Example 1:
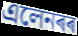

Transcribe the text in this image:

এলেনৰৰ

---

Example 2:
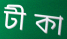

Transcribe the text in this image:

টীকা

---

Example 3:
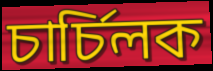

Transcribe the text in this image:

চাৰ্চিলক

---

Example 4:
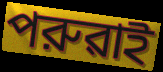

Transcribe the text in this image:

পৰুৱাই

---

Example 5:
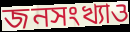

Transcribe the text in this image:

জনসংখ্যাও